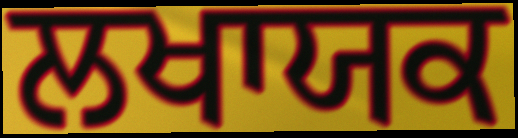
ਲਖਾਯਕ